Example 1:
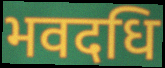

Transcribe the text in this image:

भवदधि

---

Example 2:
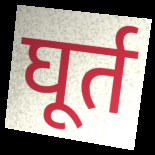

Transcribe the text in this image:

घूर्त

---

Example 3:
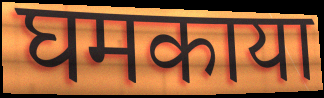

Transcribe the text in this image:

घमकाया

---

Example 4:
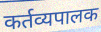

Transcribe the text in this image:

कर्तव्यपालक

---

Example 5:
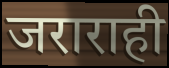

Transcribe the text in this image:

जराराही